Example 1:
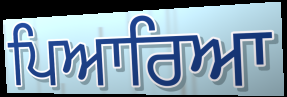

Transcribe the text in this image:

ਪਿਆਰਿਆ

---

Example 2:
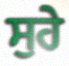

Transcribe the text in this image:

ਸੁਹੇ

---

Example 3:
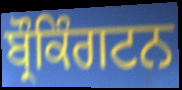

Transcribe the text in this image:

ਬ੍ਰੌਕਿੰਗਟਨ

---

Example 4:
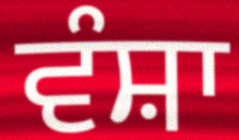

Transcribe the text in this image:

ਵੰਸ਼ਾ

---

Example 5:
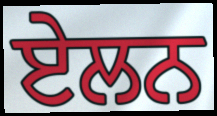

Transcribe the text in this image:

ਏਲਨ